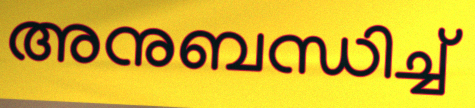
അനുബന്ധിച്ച്